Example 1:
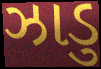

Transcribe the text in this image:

ઝાડુ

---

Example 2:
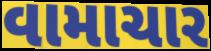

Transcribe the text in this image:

વામાચાર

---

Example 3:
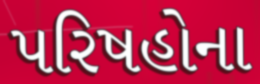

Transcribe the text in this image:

પરિષહોના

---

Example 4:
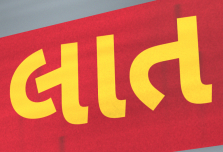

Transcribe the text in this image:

લાત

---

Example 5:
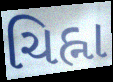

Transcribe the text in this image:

ચિહ્ના